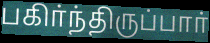
பகிர்ந்திருப்பார்